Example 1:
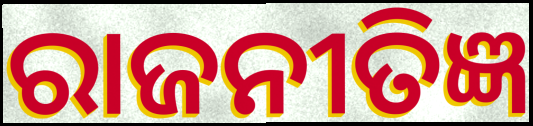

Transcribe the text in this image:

ରାଜନୀତିଜ୍ଞ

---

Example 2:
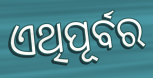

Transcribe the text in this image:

ଏଥିପୂର୍ବର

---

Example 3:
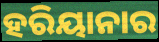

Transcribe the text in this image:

ହରିୟାନାର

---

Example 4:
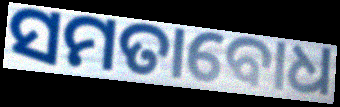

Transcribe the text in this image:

ସମତାବୋଧ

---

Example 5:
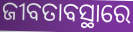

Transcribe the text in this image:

ଜୀବତାବସ୍ଥାରେ